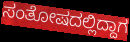
ಸಂತೋಷದಲ್ಲಿದ್ದಾಗ